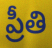
ప్రీతి